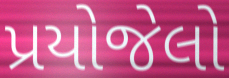
પ્રયોજેલો